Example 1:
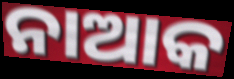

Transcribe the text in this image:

ନାଆକ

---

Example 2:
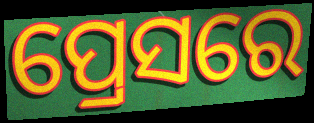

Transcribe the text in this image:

ପ୍ରେସରେ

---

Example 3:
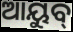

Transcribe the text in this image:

ଆୟୁବ୍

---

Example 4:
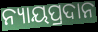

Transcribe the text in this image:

ନ୍ୟାୟପ୍ରଦାନ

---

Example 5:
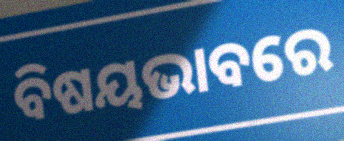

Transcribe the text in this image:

ବିଷୟଭାବରେ